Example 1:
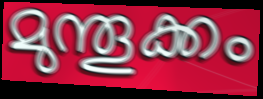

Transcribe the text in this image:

മുന്തൂക്കം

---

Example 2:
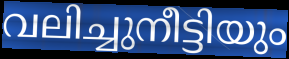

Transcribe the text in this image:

വലിച്ചുനീട്ടിയും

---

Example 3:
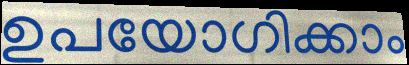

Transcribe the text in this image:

ഉപയോഗിക്കാം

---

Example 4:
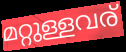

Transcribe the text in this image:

മറ്റുള്ളവര്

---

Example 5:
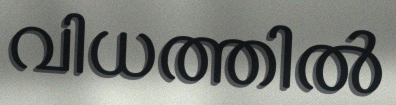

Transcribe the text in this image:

വിധത്തിൽ